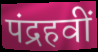
पंद्रहवीं